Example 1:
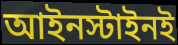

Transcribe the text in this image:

আইনস্টাইনই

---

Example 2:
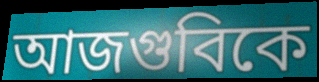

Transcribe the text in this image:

আজগুবিকে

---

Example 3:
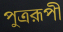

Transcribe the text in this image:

পুত্ররূপী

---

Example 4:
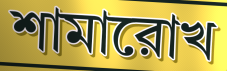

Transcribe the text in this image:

শামারোখ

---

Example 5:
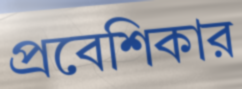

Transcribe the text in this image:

প্রবেশিকার